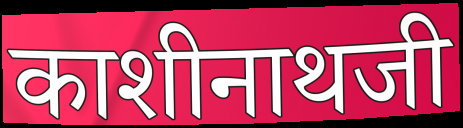
काशीनाथजी